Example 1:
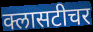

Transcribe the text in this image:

क्लासटीचर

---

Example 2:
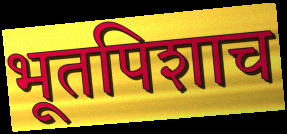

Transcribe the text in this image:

भूतपिशाच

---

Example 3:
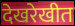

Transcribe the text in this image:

देखरेखीत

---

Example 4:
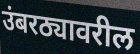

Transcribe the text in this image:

उंबरठ्यावरील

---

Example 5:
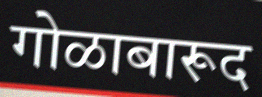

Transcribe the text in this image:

गोळाबारूद